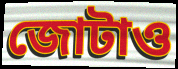
জোটাও